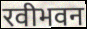
रवीभवन